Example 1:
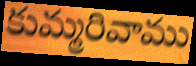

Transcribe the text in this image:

కుమ్మరివాము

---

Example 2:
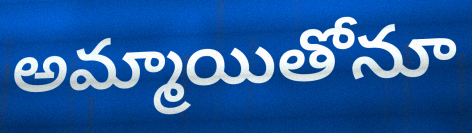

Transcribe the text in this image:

అమ్మాయితోనూ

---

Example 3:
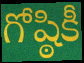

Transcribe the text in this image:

గోష్ఠికీ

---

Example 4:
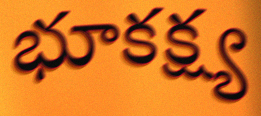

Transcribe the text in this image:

భూకక్ష్య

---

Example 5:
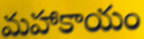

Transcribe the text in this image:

మహాకాయం